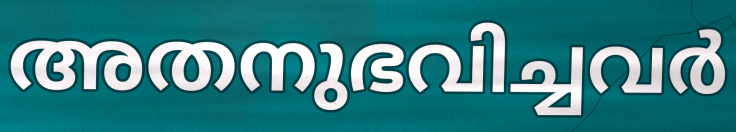
അതനുഭവിച്ചവർ